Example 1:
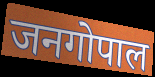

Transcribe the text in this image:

जनगोपाल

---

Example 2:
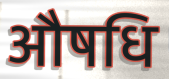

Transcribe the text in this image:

औषधि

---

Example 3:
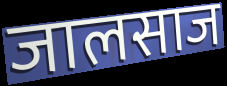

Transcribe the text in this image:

जालसाज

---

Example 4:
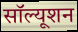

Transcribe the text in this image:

सॉल्यूशन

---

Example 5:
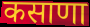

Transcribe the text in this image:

कसाणा